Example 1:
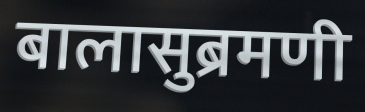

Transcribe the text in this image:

बालासुब्रमणी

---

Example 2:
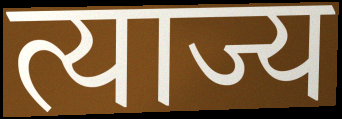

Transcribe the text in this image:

त्याज्य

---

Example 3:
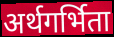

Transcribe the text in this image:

अर्थगर्भिता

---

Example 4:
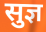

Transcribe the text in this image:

सुज्ञ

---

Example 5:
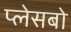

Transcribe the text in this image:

प्लेसबो